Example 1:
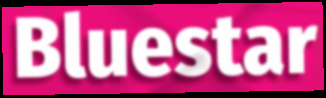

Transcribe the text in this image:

Bluestar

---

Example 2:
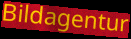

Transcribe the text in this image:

Bildagentur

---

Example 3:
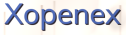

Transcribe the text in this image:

Xopenex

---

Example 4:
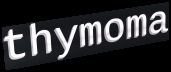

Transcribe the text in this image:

thymoma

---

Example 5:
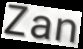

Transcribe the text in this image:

Zan